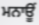
ਮਨਾਊਂ